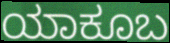
ಯಾಕೂಬ